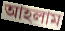
আহলাম